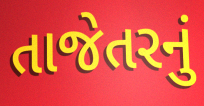
તાજેતરનું